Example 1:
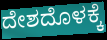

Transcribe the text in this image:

ದೇಶದೊಳಕ್ಕೆ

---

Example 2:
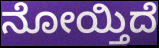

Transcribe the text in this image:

ನೋಯ್ತಿದೆ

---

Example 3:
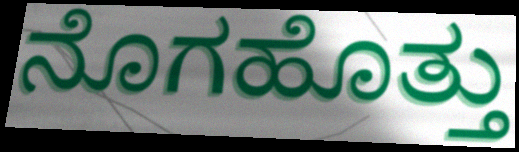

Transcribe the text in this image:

ನೊಗಹೊತ್ತು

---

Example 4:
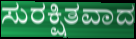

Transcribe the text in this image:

ಸುರಕ್ಷಿತವಾದ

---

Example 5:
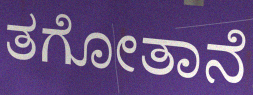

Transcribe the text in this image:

ತಗೋತಾನೆ